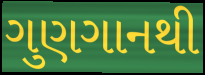
ગુણગાનથી